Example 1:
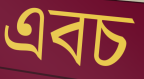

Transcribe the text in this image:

এবচ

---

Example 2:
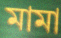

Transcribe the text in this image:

মামা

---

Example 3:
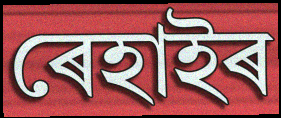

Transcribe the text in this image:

ৰেহাইৰ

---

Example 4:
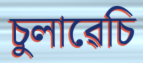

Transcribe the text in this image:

চুলাৱেচি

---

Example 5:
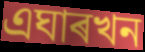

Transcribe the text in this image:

এঘাৰখন